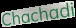
Chachadi